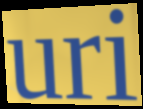
uri